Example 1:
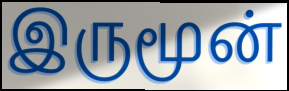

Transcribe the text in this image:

இருமூன்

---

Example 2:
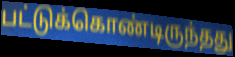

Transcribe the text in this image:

பட்டுக்கொண்டிருந்தது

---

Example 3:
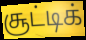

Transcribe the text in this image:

சூட்டிக்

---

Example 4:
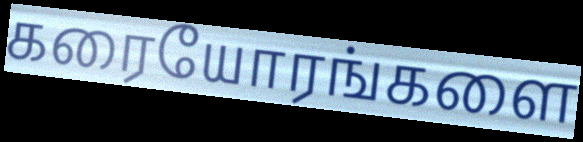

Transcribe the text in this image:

கரையோரங்களை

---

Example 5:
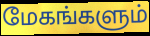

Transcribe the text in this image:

மேகங்களும்